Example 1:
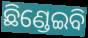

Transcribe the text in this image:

ଛିଣ୍ଡେଇବି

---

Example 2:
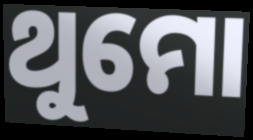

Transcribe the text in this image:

ଥୁମୋ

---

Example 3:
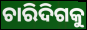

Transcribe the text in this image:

ଚାରିଦିଗକୁ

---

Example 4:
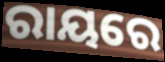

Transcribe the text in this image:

ରାୟରେ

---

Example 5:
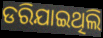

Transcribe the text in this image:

ଡରିଯାଇଥିଲି